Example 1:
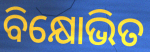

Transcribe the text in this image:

ବିକ୍ଷୋଭିତ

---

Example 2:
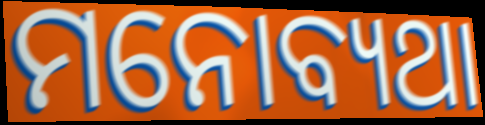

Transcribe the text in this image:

ମନୋବ୍ୟଥା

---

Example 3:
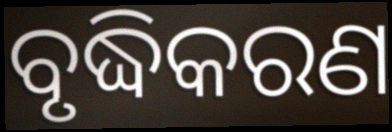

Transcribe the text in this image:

ବୃଦ୍ଧିକରଣ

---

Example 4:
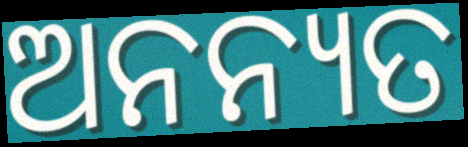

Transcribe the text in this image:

ଅନନ୍ୟତ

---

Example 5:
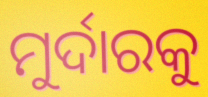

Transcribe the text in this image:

ମୁର୍ଦାରକୁ